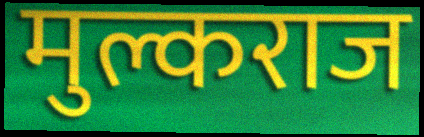
मुल्कराज